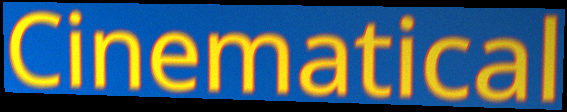
Cinematical